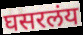
घसरलंय